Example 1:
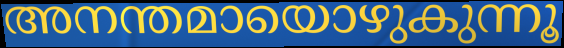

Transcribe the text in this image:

അനന്തമായൊഴുകുന്നൂ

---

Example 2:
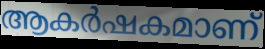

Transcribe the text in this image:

ആകർഷകമാണ്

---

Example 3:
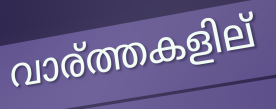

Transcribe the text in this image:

വാര്ത്തകളില്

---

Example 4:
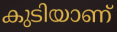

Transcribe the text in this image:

കുടിയാണ്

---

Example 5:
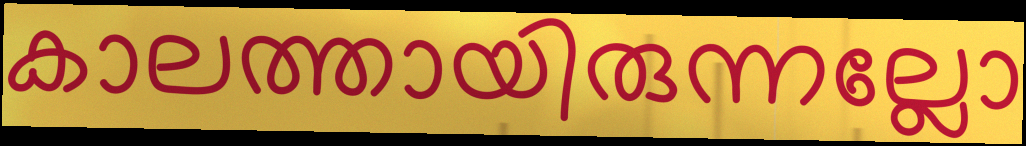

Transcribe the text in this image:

കാലത്തായിരുന്നല്ലോ